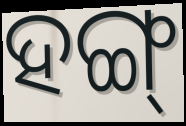
ହଙ୍ଗ୍